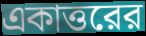
একাত্তরের